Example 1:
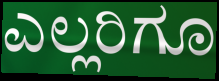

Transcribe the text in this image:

ಎಲ್ಲರಿಗೂ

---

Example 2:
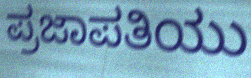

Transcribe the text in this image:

ಪ್ರಜಾಪತಿಯು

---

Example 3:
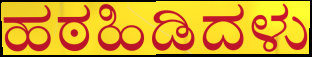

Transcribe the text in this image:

ಹಠಹಿಡಿದಳು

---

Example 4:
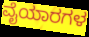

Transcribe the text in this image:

ವೈಯಾರಗಳ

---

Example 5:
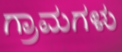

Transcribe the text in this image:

ಗ್ರಾಮಗಳು